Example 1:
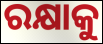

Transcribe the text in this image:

ରକ୍ଷାକୁ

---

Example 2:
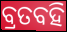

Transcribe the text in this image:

ବ୍ରତବହି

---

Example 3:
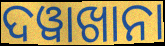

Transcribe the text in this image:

ଦୱାଖାନା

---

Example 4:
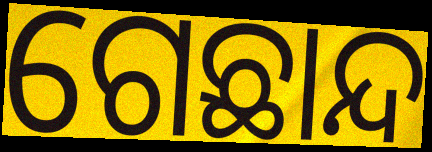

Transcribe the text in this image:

ଗେଛାନ୍ଦ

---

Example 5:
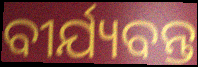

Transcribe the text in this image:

ବୀର୍ଯ୍ୟବନ୍ତ